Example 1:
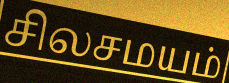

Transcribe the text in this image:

சிலசமயம்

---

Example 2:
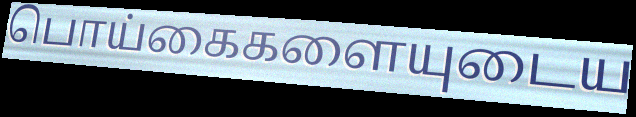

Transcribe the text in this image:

பொய்கைகளையுடைய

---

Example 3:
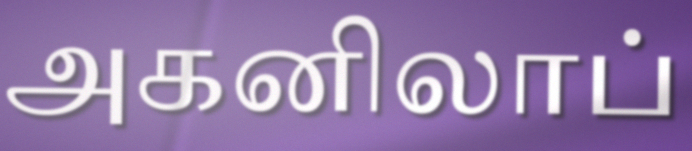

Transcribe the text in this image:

அகனிலாப்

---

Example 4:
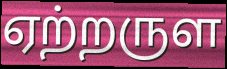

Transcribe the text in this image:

ஏற்றருள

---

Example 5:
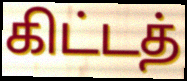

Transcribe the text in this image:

கிட்டத்